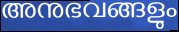
അനുഭവങ്ങളും